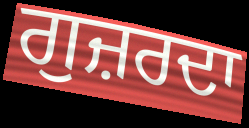
ਗੁਜ਼ਰਦਾ